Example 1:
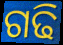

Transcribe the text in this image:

ଗଢି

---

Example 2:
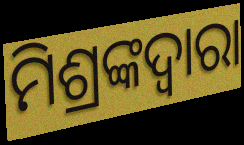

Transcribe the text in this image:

ମିଶ୍ରଙ୍କଦ୍ୱାରା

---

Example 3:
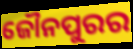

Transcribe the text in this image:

ଜୌନପୁରର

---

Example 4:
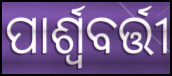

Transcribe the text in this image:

ପାର୍ଶ୍ୱବର୍ତ୍ତୀ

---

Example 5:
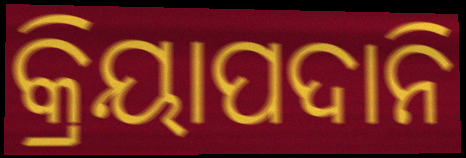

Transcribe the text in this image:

କ୍ରିୟାପଦାନି